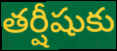
తర్షీషుకు